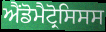
ਐਂਡੋਮੈਟ੍ਰੋਸਿਸਸ